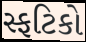
સ્ફટિકો